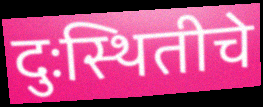
दुःस्थितीचे